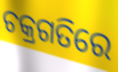
ଚକ୍ରଗତିରେ